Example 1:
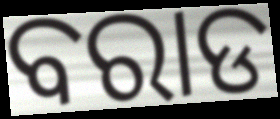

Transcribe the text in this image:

ବରାଡ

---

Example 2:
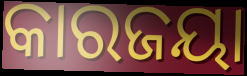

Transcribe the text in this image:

କାରଜୟା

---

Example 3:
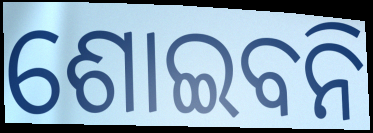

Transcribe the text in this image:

ଶୋଇବନି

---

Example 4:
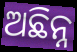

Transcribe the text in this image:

ଅଛିନ୍ନ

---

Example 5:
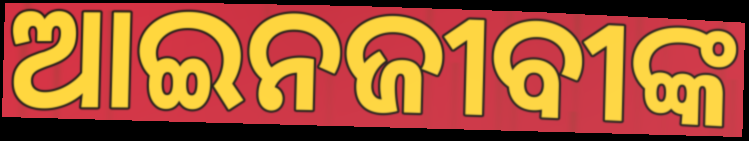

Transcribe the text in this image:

ଆଇନଜୀବୀଙ୍କ